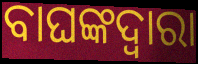
ବାଘଙ୍କଦ୍ୱାରା